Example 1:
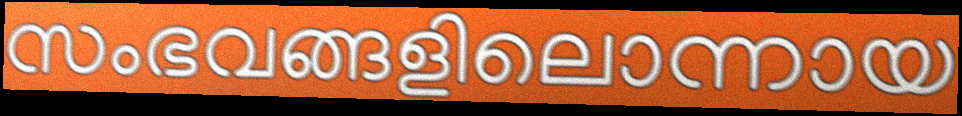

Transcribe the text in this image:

സംഭവങ്ങളിലൊന്നായ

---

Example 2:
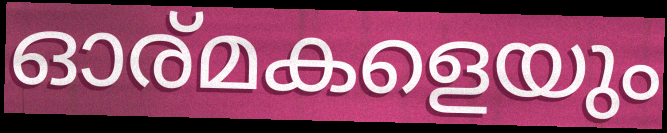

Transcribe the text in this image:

ഓര്മകളെയും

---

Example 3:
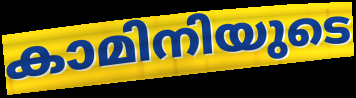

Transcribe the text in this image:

കാമിനിയുടെ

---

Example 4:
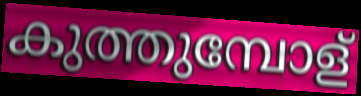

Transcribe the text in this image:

കുത്തുമ്പോള്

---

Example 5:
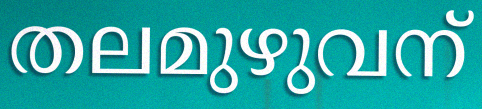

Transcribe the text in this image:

തലമുഴുവന്